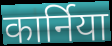
कार्निया